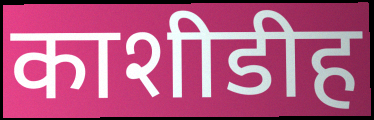
काशीडीह